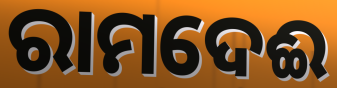
ରାମଦେଈ